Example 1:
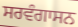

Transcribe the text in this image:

ਸਰਵੰਗਾਸਨ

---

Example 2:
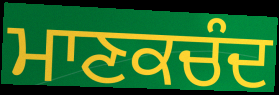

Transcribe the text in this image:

ਮਾਣਕਚੰਦ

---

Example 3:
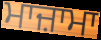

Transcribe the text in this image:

ਮਾਜ਼ਾਮਾ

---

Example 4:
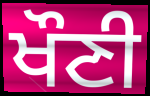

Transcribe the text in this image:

ਖੌਣੀ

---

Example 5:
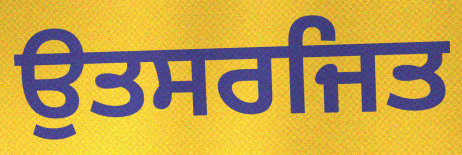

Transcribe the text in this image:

ਉਤਸਰਜਿਤ